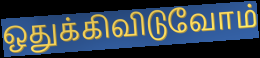
ஒதுக்கிவிடுவோம்